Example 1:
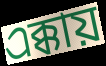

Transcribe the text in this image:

এক্কায়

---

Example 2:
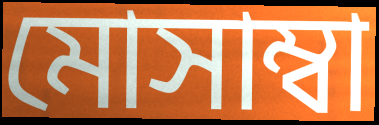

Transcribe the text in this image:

মোসাম্বা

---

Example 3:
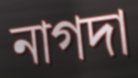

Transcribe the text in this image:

নাগদা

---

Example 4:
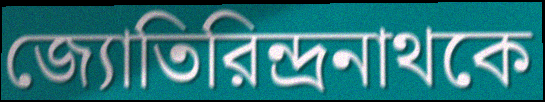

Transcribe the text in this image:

জ্যোতিরিন্দ্রনাথকে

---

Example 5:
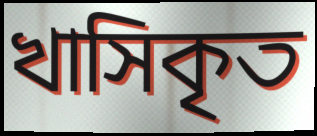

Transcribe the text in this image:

খাসিকৃত